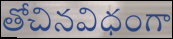
తోచినవిధంగా